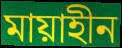
মায়াহীন